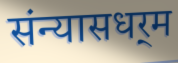
संन्यासधर्म